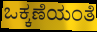
ಒಕ್ಕಣೆಯಂತೆ